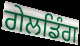
ਗੇਲਡਿੰਗ